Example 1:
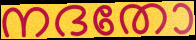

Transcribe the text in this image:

നദതോ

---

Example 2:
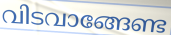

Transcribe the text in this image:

വിടവാങ്ങേണ്ട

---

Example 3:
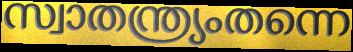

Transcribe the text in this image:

സ്വാതന്ത്ര്യംതന്നെ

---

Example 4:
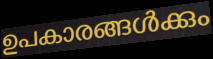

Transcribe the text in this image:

ഉപകാരങ്ങൾക്കും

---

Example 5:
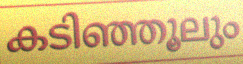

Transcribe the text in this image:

കടിഞ്ഞൂലും